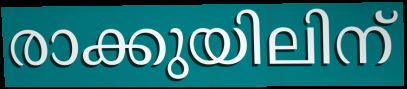
രാക്കുയിലിന്